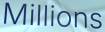
Millions